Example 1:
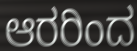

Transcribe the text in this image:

ಆರರಿಂದ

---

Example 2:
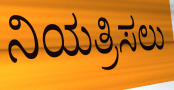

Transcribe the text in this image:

ನಿಯತ್ರಿಸಲು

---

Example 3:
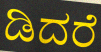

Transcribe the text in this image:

ಡಿದರೆ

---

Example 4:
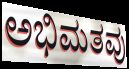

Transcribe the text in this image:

ಅಭಿಮತವು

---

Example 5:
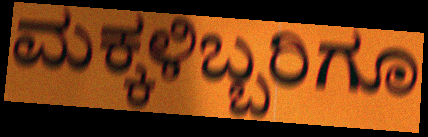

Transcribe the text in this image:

ಮಕ್ಕಳಿಬ್ಬರಿಗೂ